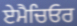
ਏਮੈਚਿਓਰ